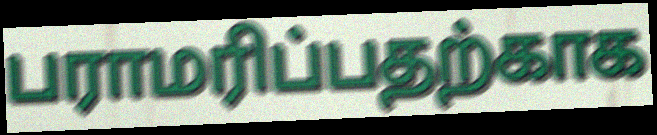
பராமரிப்பதற்காக